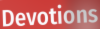
Devotions